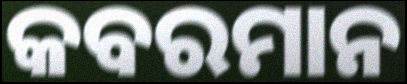
କବରମାନ